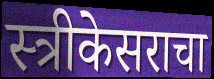
स्त्रीकेसराचा